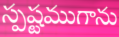
స్పష్టముగాను